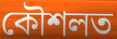
কৌশলত